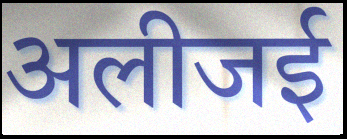
अलीजई